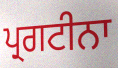
ਪ੍ਰਗਟੀਨਾ